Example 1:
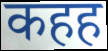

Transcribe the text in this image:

कहह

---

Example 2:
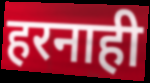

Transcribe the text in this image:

हरनाही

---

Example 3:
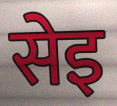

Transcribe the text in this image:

सेइ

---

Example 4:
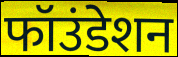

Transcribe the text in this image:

फॉउंडेशन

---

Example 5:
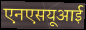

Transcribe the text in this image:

एनएसयूआई